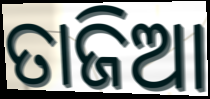
ତାଜିଆ